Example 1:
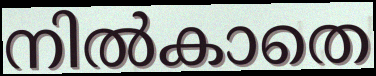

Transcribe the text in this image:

നിൽകാതെ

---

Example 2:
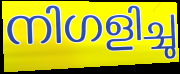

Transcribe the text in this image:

നിഗളിച്ചു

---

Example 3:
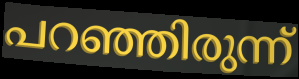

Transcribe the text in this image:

പറഞ്ഞിരുന്ന്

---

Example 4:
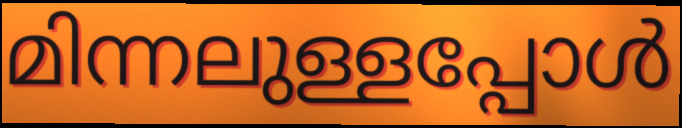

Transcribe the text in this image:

മിന്നലുള്ളപ്പോൾ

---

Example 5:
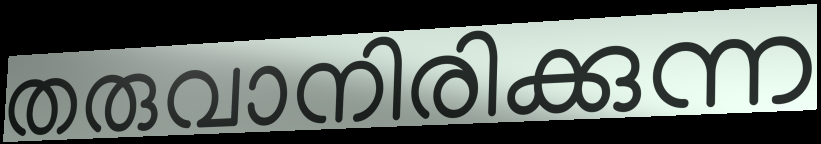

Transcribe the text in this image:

തരുവാനിരിക്കുന്ന